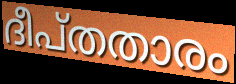
ദീപ്തതാരം